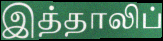
இத்தாலிப்